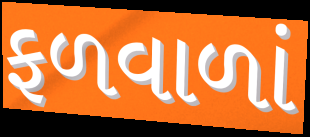
ફળવાળાં